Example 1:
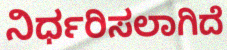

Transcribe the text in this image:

ನಿರ್ಧರಿಸಲಾಗಿದೆ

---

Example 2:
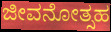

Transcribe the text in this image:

ಜೀವನೋತ್ಸಹ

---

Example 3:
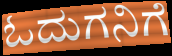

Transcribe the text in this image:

ಓದುಗನಿಗೆ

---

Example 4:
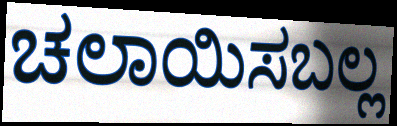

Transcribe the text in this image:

ಚಲಾಯಿಸಬಲ್ಲ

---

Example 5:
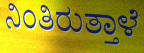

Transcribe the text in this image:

ನಿಂತಿರುತ್ತಾಳೆ